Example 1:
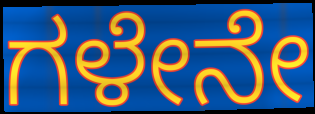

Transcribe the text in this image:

ಗಳೇನೇ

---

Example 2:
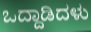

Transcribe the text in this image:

ಒದ್ದಾಡಿದಳು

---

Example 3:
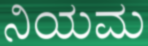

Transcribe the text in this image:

ನಿಯಮ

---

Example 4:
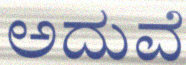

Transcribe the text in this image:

ಅದುವೆ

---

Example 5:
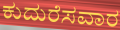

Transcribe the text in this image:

ಕುದುರೆಸವಾರ